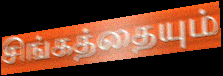
சிங்கத்தையும்